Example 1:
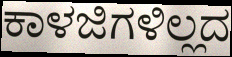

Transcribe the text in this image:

ಕಾಳಜಿಗಳಿಲ್ಲದ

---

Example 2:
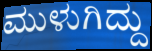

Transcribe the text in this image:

ಮುಳುಗಿದ್ದು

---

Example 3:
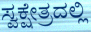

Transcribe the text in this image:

ಸ್ವಕ್ಷೇತ್ರದಲ್ಲಿ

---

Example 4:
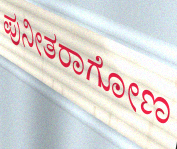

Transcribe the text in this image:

ಪುನೀತರಾಗೋಣ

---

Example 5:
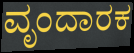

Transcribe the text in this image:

ವೃಂದಾರಕ